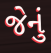
જેનું